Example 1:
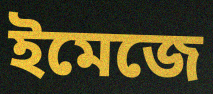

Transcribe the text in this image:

ইমেজে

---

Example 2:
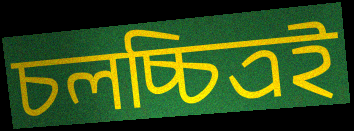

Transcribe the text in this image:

চলচ্চিত্ৰই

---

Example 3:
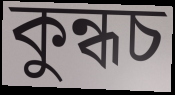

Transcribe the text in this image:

কুন্ধচ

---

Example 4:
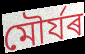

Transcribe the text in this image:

মৌৰ্যৰ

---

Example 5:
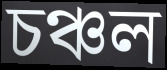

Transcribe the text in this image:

চঞ্চল